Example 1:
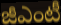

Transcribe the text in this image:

జీఎంటీ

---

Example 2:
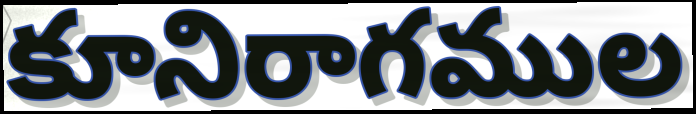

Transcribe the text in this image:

కూనిరాగముల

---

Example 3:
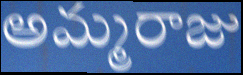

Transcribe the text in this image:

అమ్మరాజు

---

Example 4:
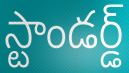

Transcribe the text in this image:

స్టాండర్డ్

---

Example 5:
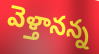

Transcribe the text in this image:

వెళ్తానన్న